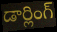
డార్లింగ్